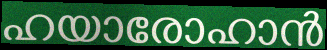
ഹയാരോഹാൻ